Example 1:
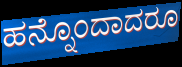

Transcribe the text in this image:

ಹನ್ನೊಂದಾದರೂ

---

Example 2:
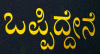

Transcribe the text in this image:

ಒಪ್ಪಿದ್ದೇನೆ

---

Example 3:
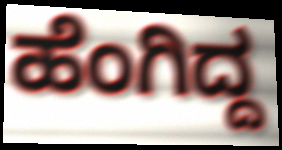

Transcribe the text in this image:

ಹೆಂಗಿದ್ದ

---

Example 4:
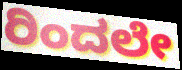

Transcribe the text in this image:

ರಿಂದಲೇ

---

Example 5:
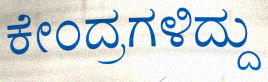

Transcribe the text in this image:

ಕೇಂದ್ರಗಳಿದ್ದು